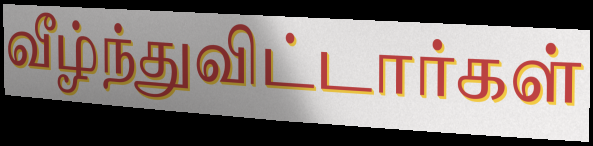
வீழ்ந்துவிட்டார்கள்